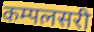
कम्पलसरी